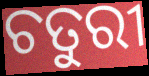
ଚତୁରୀ